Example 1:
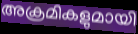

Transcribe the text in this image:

അക്രമികളുമായി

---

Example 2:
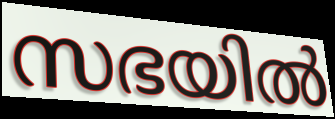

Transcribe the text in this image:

സഭയിൽ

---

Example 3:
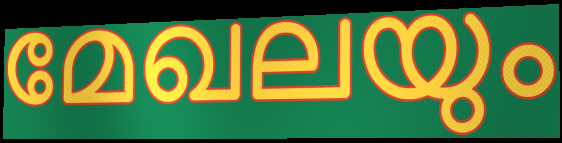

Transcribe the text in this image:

മേഖലയും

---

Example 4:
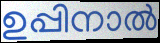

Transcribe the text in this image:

ഉപ്പിനാൽ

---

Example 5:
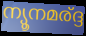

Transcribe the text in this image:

ന്യൂനമര്ദ്ദ